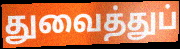
துவைத்துப்